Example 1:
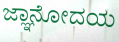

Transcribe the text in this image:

ಜ್ಞಾನೋದಯ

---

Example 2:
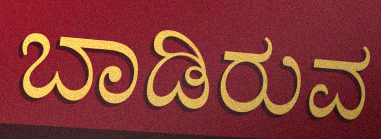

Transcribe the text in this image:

ಬಾಡಿರುವ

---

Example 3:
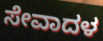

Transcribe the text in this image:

ಸೇವಾದಳ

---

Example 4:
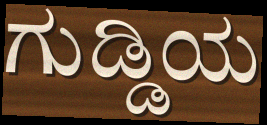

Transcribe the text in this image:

ಗುಡ್ಡಿಯ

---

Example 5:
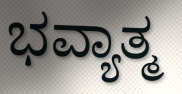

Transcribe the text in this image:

ಭವ್ಯಾತ್ಮ